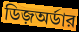
ডিজ়অর্ডার